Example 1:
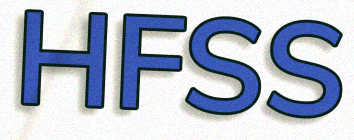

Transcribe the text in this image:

HFSS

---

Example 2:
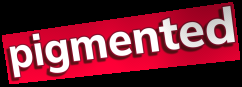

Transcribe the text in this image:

pigmented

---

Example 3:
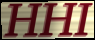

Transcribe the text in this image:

HHI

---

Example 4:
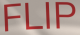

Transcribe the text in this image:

FLIP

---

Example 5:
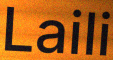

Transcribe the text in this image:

Laili